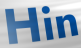
Hin